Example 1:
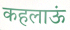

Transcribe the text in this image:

कहलाऊं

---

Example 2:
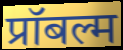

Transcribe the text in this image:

प्रॉबल्म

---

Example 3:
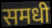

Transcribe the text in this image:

समधी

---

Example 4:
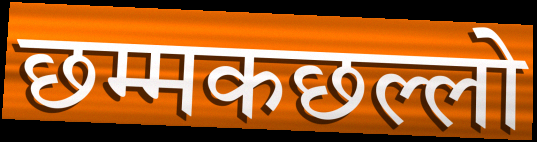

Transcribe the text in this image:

छम्मकछल्लो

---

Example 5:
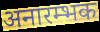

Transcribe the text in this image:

अनारम्भक